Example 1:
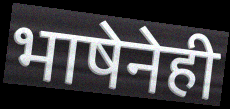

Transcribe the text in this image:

भाषेनेही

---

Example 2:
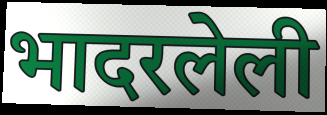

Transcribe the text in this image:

भादरलेली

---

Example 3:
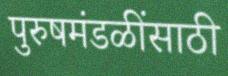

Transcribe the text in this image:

पुरुषमंडळींसाठी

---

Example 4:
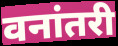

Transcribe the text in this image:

वनांतरी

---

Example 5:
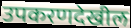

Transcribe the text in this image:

उपकरणदेखील